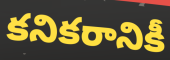
కనికరానికీ